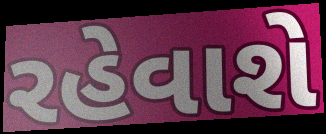
રહેવાશે